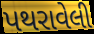
પથરાવેલી